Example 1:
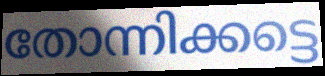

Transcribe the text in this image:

തോന്നിക്കട്ടെ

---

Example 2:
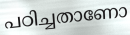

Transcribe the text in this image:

പഠിച്ചതാണോ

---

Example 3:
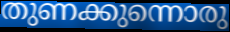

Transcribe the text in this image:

തുണക്കുന്നൊരു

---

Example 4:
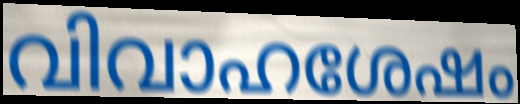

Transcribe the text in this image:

വിവാഹശേഷം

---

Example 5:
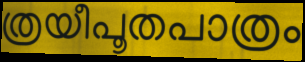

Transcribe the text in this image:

ത്രയീപൂതപാത്രം